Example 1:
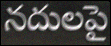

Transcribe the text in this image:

నదులపై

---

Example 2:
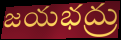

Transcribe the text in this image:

జయభద్రు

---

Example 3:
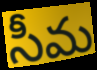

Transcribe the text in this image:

సీమ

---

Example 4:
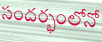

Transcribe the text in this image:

సందర్భంలోనో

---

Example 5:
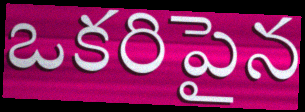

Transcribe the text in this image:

ఒకరిపైన